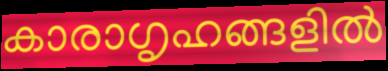
കാരാഗൃഹങ്ങളിൽ